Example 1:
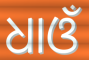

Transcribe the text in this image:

ଧାଓଁ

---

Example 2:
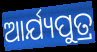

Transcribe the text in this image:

ଆର୍ଯ୍ୟପୁତ୍ର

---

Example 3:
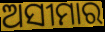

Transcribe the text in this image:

ଅସୀମାର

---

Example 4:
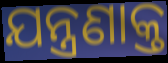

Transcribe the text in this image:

ଯନ୍ତ୍ରଣାକ୍ତ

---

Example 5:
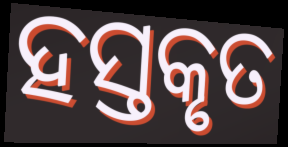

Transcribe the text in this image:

ହସ୍ତକୃତ